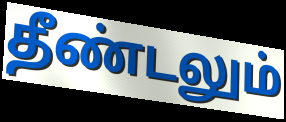
தீண்டலும்